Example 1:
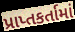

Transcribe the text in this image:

પ્રાપ્તકર્તામાં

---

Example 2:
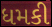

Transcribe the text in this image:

ધમકી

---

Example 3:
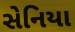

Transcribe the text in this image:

સેનિયા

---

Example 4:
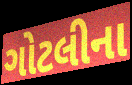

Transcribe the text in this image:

ગોટલીના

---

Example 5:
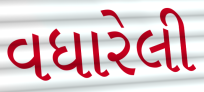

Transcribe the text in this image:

વધારેલી